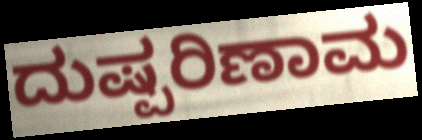
ದುಷ್ಪರಿಣಾಮ